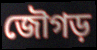
জৌগড়